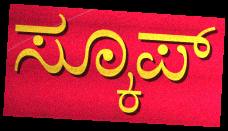
ಸ್ಕೂಪ್